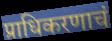
प्राधिकरणाचं